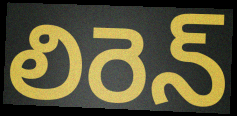
లిరెన్